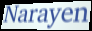
Narayen